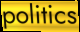
politics